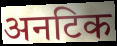
अनटिक